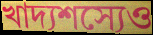
খাদ্যশস্যেও